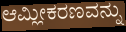
ಆಮ್ಲೀಕರಣವನ್ನು